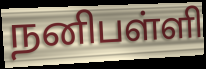
நனிபள்ளி